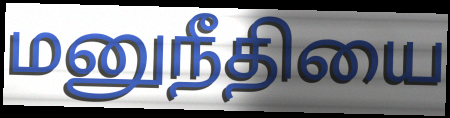
மனுநீதியை